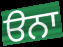
ੳਨਾ